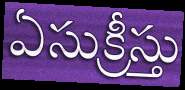
ఏసుక్రీస్తు